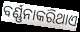
ବର୍ଣ୍ଣନାକରିଥାଏ